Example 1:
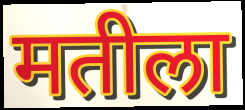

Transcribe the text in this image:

मतीला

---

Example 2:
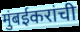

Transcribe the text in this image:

मुंबईकरांची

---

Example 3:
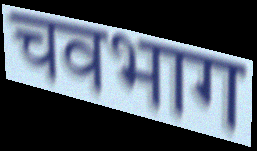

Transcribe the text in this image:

चवभाग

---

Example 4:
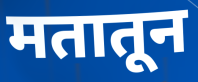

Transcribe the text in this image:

मतातून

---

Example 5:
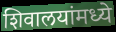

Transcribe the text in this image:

शिवालयांमध्ये